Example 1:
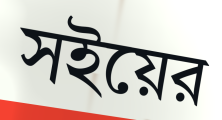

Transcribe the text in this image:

সইয়ের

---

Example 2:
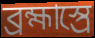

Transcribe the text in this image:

ব্রহ্মাস্ত্রে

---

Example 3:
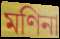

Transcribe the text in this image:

মণিনা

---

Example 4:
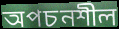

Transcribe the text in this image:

অপচনশীল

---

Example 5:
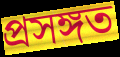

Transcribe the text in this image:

প্রসঙ্গত